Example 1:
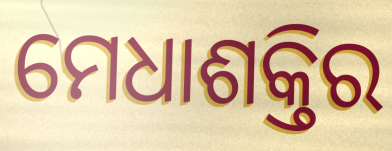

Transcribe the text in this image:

ମେଧାଶକ୍ତିର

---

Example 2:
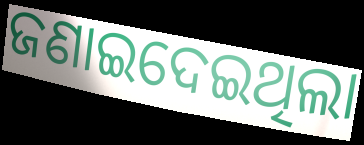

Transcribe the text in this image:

ଜଣାଇଦେଇଥିଲା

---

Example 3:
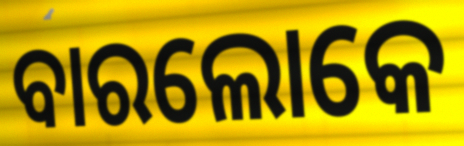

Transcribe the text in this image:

ବାରଲୋକେ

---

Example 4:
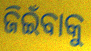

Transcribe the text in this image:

ଜିଇଁବାକୁ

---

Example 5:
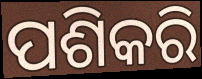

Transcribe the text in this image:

ପଶିକରି